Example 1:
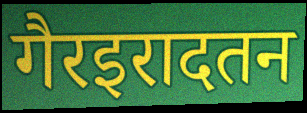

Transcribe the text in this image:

गैरइरादतन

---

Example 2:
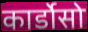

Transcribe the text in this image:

कार्डोसो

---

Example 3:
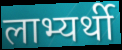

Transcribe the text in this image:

लाभ्यर्थी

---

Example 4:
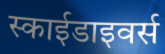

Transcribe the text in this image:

स्काईडाइवर्स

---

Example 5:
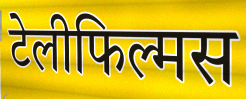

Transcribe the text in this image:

टेलीफिल्मस